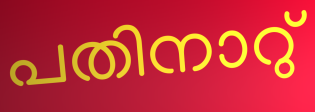
പതിനാറു്